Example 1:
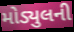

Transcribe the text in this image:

મોડ્યુલની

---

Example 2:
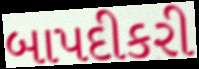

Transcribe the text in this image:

બાપદીકરી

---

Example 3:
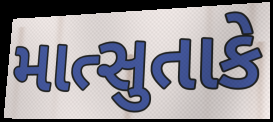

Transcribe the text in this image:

માત્સુતાકે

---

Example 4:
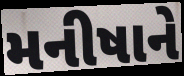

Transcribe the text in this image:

મનીષાને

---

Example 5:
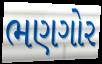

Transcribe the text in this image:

ભણગોર